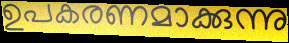
ഉപകരണമാക്കുന്നു